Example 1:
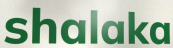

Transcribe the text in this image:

shalaka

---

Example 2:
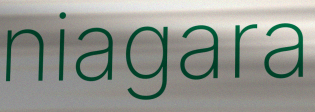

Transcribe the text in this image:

niagara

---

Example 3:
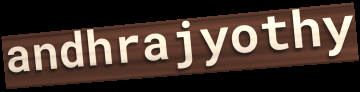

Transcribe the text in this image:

andhrajyothy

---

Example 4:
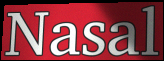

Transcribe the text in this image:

Nasal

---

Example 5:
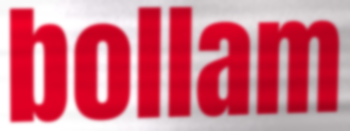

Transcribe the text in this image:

bollam